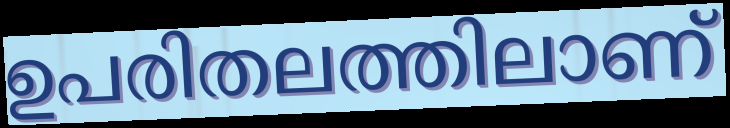
ഉപരിതലത്തിലാണ്